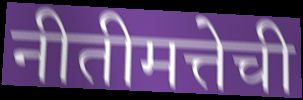
नीतीमत्तेची